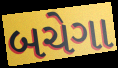
બચેગા